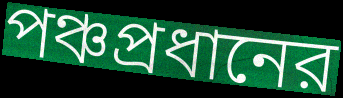
পঞ্চপ্রধানের